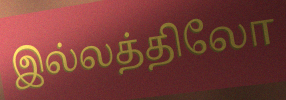
இல்லத்திலோ